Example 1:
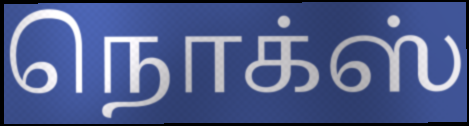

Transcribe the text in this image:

நொக்ஸ்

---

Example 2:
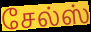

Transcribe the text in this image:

சேல்ஸ்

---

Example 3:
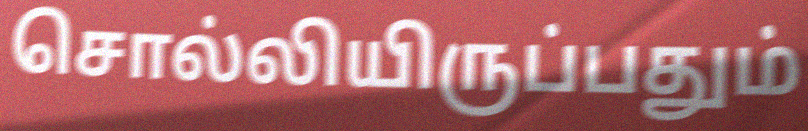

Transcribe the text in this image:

சொல்லியிருப்பதும்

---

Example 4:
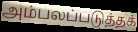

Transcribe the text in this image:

அம்பலப்படுத்தக்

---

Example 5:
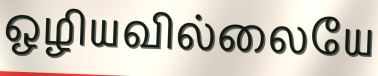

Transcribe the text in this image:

ஒழியவில்லையே